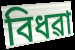
বিধৱা